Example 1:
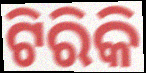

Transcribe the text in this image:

ଟିରିକି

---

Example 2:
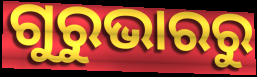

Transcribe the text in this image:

ଗୁରୁଭାରରୁ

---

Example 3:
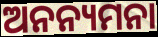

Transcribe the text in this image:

ଅନନ୍ୟମନା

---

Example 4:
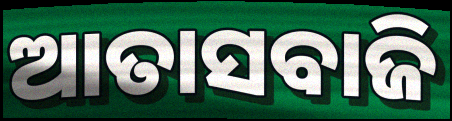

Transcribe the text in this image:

ଆତାସବାଜି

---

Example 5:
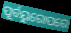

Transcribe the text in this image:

ପୂର୍ବୟୁରୋପରେ